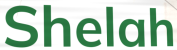
Shelah